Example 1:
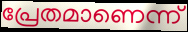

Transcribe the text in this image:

പ്രേതമാണെന്ന്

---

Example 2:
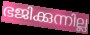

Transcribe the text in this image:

ഭജിക്കുന്നില്ല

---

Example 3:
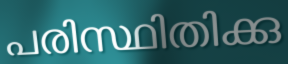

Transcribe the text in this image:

പരിസ്ഥിതിക്കു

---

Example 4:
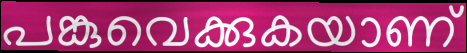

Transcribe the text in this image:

പങ്കുവെക്കുകയാണ്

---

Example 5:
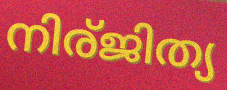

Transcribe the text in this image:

നിര്ജിത്യ